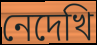
নেদেখি